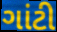
ગાંટી